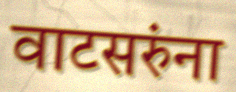
वाटसरुंना